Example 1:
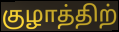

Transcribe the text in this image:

குழாத்திற்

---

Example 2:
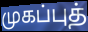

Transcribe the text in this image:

முகப்புத்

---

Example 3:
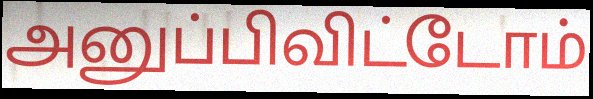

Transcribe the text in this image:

அனுப்பிவிட்டோம்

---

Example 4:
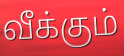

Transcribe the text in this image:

வீக்கும்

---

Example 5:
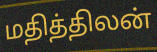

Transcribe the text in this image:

மதித்திலன்